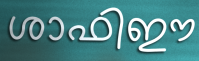
ശാഫിഈ